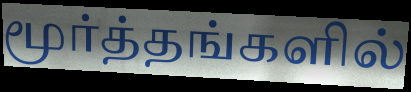
மூர்த்தங்களில்